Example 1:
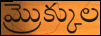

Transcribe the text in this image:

మ్రొక్కుల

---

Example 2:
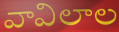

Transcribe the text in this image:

వావిలాల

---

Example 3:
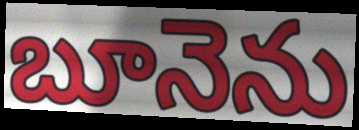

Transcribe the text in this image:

బూనెను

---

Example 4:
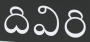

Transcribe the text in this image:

దివిరి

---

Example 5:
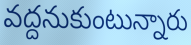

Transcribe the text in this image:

వద్దనుకుంటున్నారు